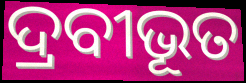
ଦ୍ରବୀଭୂତ